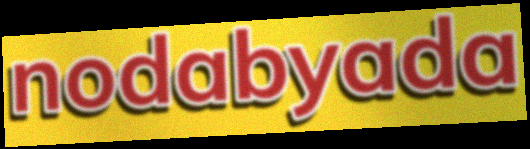
nodabyada